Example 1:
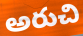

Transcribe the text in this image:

అరుచి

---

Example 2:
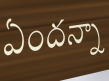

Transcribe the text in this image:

ఏందన్నా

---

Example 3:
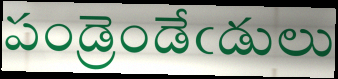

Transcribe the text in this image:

పండ్రెండేఁడులు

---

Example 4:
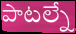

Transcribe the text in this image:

పాటల్నే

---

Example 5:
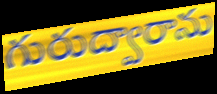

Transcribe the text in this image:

గురుద్వారాను